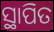
ସ୍ଥାପିତ